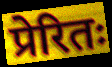
प्रेरितः